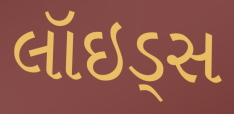
લૉઇડ્સ